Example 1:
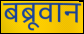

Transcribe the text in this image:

बब्रूवान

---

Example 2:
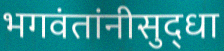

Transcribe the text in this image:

भगवंतांनीसुद्धा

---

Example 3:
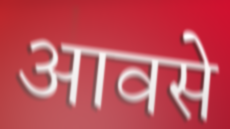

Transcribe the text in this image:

आवसे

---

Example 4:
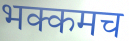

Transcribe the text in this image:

भक्कमच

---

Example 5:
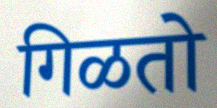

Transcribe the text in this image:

गिळतो